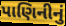
પાણિનીનું